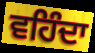
ਵਹਿੰਦਾ